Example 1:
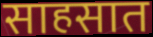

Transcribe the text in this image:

साहसात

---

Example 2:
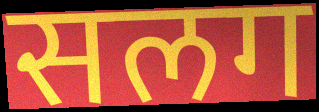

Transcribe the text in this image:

सलग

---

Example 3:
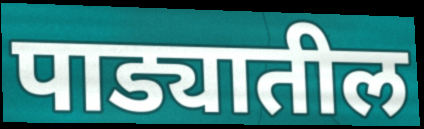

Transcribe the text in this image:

पाड्यातील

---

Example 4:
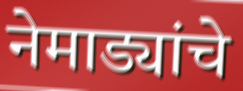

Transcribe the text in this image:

नेमाड्यांचे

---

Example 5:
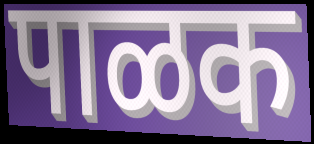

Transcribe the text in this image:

पाळक